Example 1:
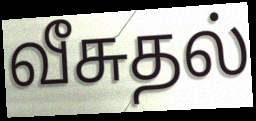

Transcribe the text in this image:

வீசுதல்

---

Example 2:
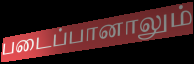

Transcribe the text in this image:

படைப்பானாலும்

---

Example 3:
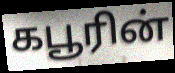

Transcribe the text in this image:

கபூரின்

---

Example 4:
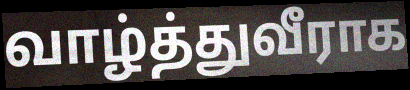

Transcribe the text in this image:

வாழ்த்துவீராக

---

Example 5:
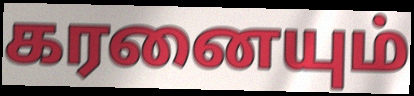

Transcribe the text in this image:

கரனையும்